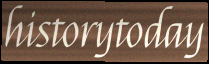
historytoday